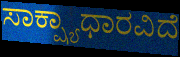
ಸಾಕ್ಷ್ಯಾಧಾರವಿದೆ